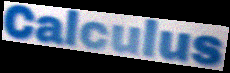
Calculus